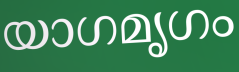
യാഗമൃഗം